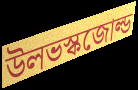
উলভস্কজোল্ড